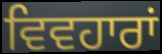
ਵਿਵਹਾਰਾਂ